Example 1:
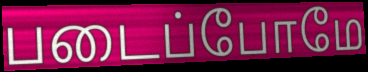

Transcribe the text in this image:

படைப்போமே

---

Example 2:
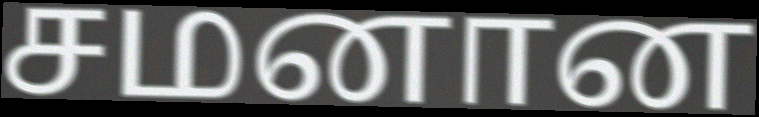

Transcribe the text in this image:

சமனான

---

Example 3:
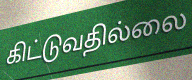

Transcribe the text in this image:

கிட்டுவதில்லை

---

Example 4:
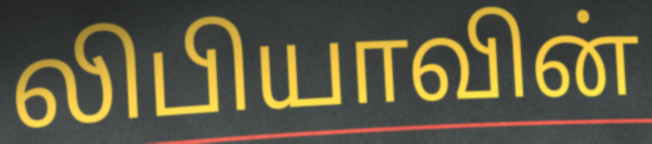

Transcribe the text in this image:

லிபியாவின்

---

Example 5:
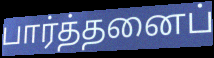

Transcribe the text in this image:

பார்த்தனைப்